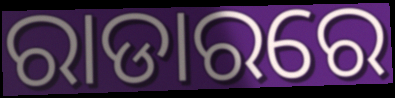
ରାଡାରରେ